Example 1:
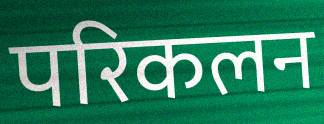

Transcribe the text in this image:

परिकलन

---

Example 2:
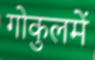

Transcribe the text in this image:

गोकुलमें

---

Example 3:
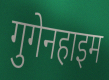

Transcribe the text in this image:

गुगेनहाइम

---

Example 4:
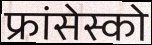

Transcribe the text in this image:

फ्रांसेस्को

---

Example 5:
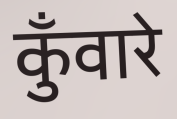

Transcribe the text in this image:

कुँवारे